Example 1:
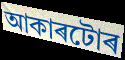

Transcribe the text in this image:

আকাৰটোৰ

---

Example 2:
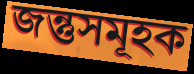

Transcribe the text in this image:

জন্তুসমূহক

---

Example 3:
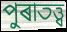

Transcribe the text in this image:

পুৰাতত্ত্ব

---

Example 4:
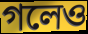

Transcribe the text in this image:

গলেও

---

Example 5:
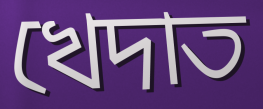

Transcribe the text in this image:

খেদাত